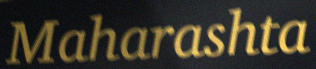
Maharashta